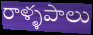
రాళ్ళపాలు